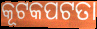
କୂଟକପଟତା